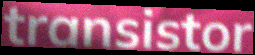
transistor